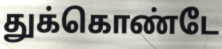
துக்கொண்டே